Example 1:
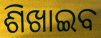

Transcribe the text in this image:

ଶିଖାଇବ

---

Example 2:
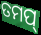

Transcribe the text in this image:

ତମପ୍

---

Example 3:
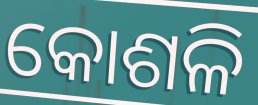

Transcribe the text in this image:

କୋଶଳି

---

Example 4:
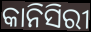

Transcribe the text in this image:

କାନିସିରୀ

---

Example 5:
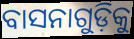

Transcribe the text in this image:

ବାସନାଗୁଡ଼ିକୁ